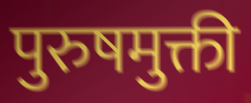
पुरुषमुक्ती